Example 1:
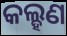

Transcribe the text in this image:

କଲ୍ହଣ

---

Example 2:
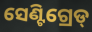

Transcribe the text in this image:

ସେଣ୍ଟିଗ୍ରେଡ୍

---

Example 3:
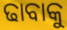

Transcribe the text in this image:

ଢାବାକୁ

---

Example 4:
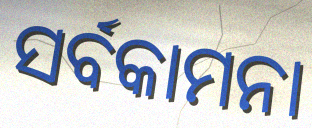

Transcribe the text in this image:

ସର୍ବକାମନା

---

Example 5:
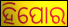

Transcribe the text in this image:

ହିପୋର